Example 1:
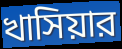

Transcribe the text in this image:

খাসিয়ার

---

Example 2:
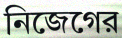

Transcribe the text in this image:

নিজেগের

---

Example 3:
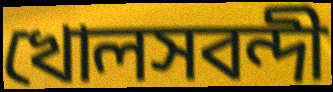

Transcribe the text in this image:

খোলসবন্দী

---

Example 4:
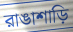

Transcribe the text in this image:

রাঙাশাড়ি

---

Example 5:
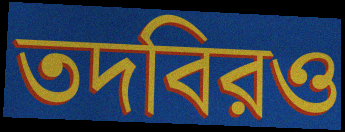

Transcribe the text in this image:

তদবিরও